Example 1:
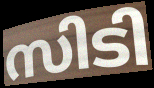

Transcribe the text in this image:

സിടി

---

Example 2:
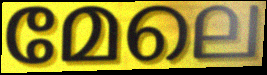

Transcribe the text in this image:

മേലെ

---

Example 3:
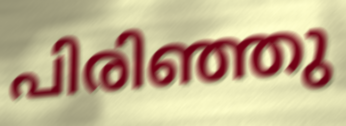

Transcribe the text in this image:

പിരിഞ്ഞു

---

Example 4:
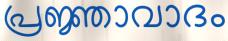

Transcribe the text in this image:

പ്രജ്ഞാവാദം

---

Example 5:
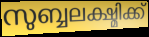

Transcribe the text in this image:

സുബ്ബലക്ഷ്മിക്ക്